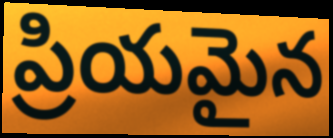
ప్రియమైన